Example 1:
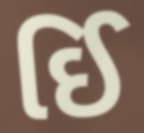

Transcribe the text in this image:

ઈિ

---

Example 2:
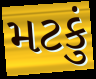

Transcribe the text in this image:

મટકું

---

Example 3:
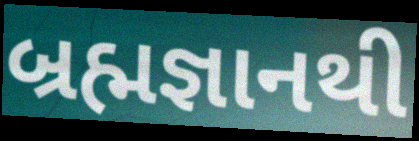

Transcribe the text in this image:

બ્રહ્મજ્ઞાનથી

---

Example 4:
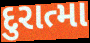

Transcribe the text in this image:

દુરાત્મા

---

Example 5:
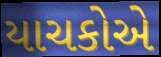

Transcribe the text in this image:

યાચકોએ